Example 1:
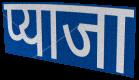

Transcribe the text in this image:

प्याजा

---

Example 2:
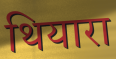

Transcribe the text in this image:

थियारा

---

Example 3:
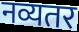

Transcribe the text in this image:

नव्यतर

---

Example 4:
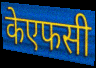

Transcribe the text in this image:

केएफसी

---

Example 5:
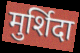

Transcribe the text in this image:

मुर्शिदा